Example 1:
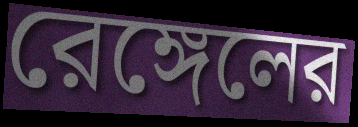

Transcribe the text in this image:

রেঙ্গেলের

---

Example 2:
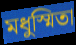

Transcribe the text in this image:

মধুস্মিতা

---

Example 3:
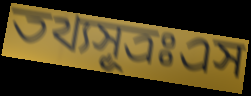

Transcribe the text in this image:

তথ্যসূত্রঃএস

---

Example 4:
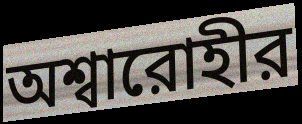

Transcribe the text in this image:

অশ্বারোহীর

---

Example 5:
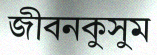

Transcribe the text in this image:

জীবনকুসুম